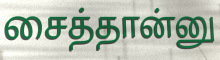
சைத்தான்னு